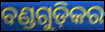
ବଣ୍ଡଗୁଡ଼ିକର